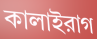
কালাইরাগ